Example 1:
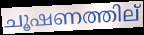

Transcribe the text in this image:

ചൂഷണത്തില്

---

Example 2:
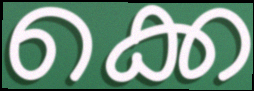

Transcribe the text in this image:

ക്കെ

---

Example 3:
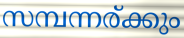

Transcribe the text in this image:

സമ്പന്നര്ക്കും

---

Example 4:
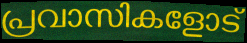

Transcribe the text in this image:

പ്രവാസികളോട്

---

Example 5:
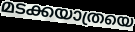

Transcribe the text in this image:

മടക്കയാത്രയെ